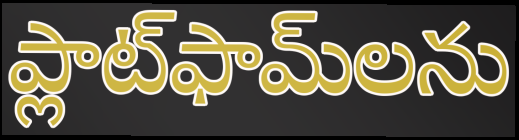
ప్లాట్‌ఫామ్‌లను